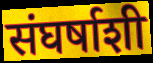
संघर्षाशी